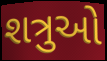
શત્રુઓ